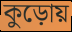
কুড়োয়